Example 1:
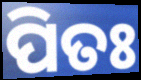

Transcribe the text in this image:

ପିତଃ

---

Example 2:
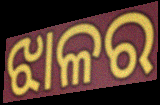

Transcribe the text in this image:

ଝାଳର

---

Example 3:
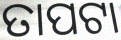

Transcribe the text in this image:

ତାପଟା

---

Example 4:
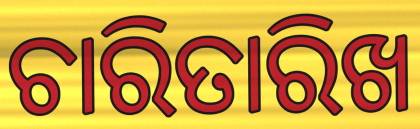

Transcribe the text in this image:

ଚାରିତାରିଖ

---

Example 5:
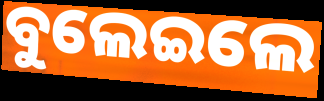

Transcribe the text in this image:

ବୁଲେଇଲେ